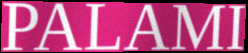
PALAMI